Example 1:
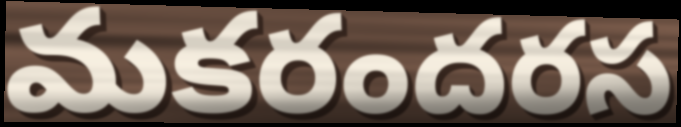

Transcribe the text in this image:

మకరందరస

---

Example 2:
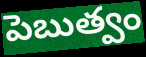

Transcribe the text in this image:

పెబుత్వం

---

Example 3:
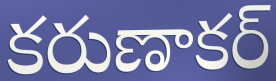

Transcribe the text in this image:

కరుణాకర్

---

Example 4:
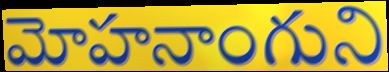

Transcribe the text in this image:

మోహనాంగుని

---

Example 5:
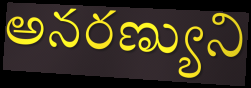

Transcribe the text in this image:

అనరణ్యుని